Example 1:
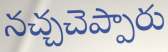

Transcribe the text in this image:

నచ్చచెప్పారు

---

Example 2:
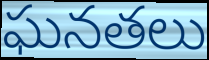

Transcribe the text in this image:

ఘనతలు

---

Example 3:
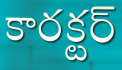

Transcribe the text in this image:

కారక్టర్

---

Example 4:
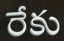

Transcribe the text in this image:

రేకు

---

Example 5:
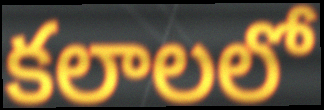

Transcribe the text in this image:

కలాలలో